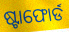
ଷ୍ଟାଫୋର୍ଡ